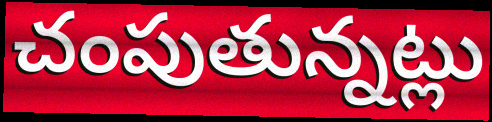
చంపుతున్నట్లు